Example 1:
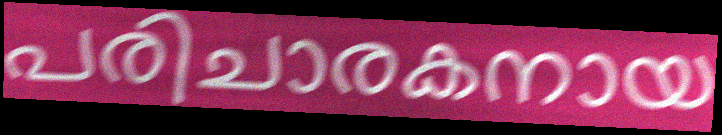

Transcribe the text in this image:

പരിചാരകനായ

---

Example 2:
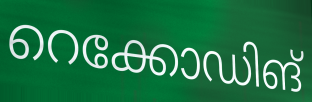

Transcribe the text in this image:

റെക്കോഡിങ്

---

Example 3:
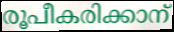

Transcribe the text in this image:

രൂപീകരിക്കാന്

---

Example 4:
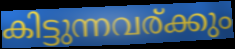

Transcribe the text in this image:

കിട്ടുന്നവര്ക്കും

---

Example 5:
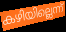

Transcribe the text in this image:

കഴിയില്ലെന്ന്